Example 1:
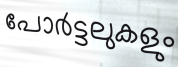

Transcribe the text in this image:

പോർട്ടലുകളും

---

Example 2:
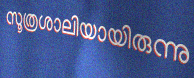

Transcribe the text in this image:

സൂത്രശാലിയായിരുന്നു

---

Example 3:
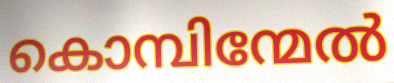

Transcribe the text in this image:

കൊമ്പിന്മേൽ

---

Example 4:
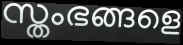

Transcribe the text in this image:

സ്തംഭങ്ങളെ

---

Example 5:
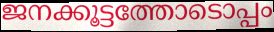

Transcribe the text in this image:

ജനക്കൂട്ടത്തോടൊപ്പം